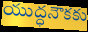
యుద్ధనౌకకు